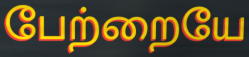
பேற்றையே